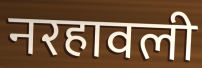
नरहावली